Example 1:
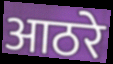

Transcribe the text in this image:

आठरे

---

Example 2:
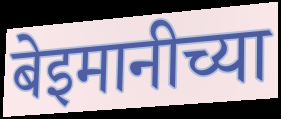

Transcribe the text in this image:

बेइमानीच्या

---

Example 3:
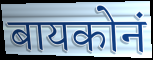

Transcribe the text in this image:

बायकोनं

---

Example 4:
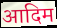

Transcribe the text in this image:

आदिम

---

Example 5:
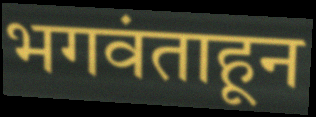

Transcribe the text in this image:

भगवंताहून